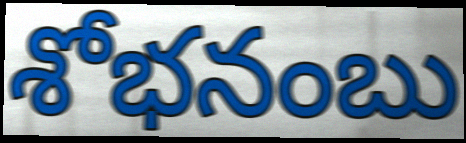
శోభనంబు